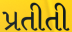
પ્રતીતી